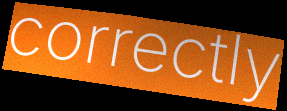
correctly